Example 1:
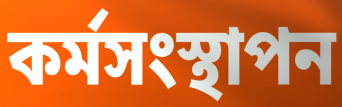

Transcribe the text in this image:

কৰ্মসংস্থাপন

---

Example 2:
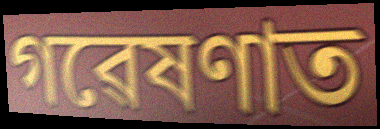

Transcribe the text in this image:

গৱেষণাত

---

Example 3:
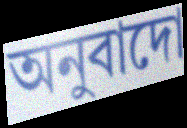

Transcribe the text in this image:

অনুবাদো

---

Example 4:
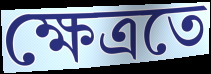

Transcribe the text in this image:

ক্ষেত্ৰতে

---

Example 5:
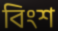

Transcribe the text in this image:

বিংশ